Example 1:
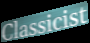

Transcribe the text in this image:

Classicist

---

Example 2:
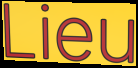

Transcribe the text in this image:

Lieu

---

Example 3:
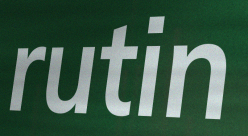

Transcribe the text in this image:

rutin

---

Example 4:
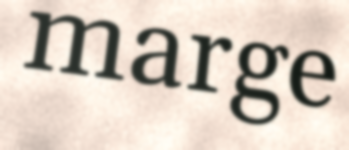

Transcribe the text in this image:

marge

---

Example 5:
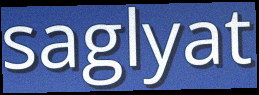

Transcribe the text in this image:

saglyat